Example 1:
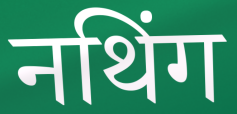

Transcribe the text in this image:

नथिंग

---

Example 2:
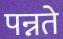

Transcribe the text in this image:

पन्नते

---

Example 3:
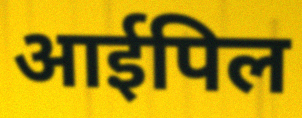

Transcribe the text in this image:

आईपिल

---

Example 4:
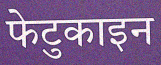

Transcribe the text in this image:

फेटुकाइन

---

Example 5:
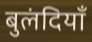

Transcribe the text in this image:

बुलंदियाँ